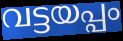
വട്ടയപ്പം